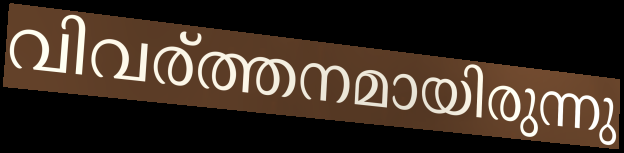
വിവര്ത്തനമായിരുന്നു